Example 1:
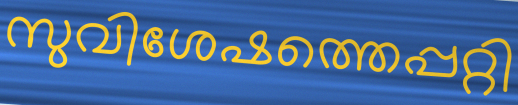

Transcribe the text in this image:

സുവിശേഷത്തെപ്പറ്റി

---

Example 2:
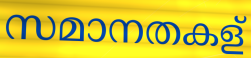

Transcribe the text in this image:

സമാനതകള്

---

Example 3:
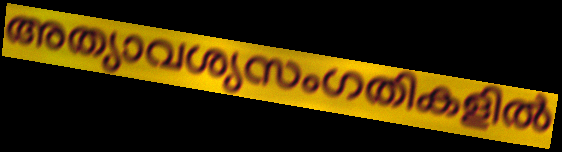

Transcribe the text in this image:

അത്യാവശ്യസംഗതികളിൽ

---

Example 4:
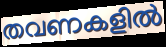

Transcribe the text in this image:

തവണകളിൽ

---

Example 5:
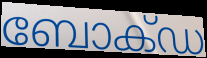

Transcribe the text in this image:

ബോക്ഡ